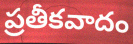
ప్రతీకవాదం